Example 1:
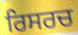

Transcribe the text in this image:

ਰਿਸਰਚ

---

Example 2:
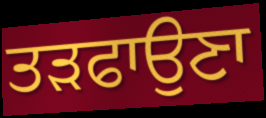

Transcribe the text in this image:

ਤੜਫਾਉਣਾ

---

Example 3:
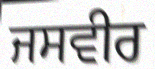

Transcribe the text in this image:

ਜਸਵੀਰ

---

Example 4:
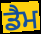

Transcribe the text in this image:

ਡੈਮ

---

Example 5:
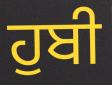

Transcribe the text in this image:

ਹੁਬੀ